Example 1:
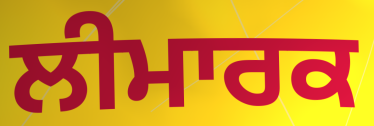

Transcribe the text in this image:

ਲੀਮਾਰਕ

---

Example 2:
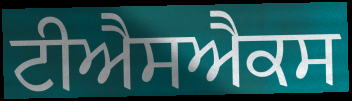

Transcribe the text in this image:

ਟੀਐਸਐਕਸ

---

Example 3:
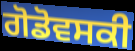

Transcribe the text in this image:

ਗੋਡੋਵਸਕੀ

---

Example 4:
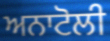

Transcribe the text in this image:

ਅਨਾਟੋਲੀ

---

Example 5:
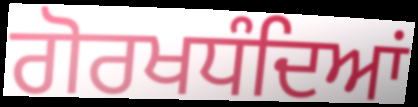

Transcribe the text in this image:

ਗੋਰਖਧੰਦਿਆਂ